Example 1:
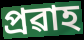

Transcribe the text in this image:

প্ৰৱাহ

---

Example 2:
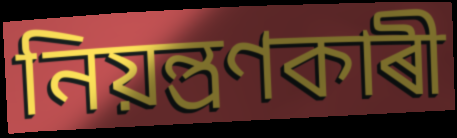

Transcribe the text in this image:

নিয়ন্ত্ৰণকাৰী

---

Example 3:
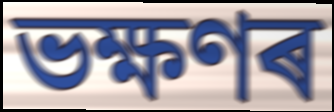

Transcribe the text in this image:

ভক্ষণৰ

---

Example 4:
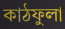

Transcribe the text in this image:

কাঠফুলা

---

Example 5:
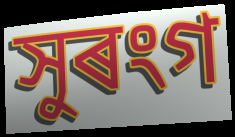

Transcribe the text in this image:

সুৰংগ